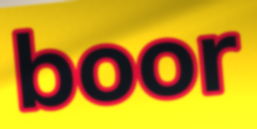
boor